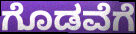
ಗೊಡವೆಗೆ